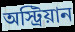
অস্ট্রিয়ান